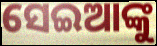
ସେଇଆଙ୍କୁ